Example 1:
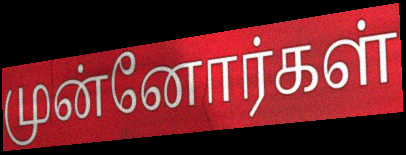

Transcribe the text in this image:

முன்னோர்கள்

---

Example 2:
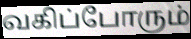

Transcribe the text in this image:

வகிப்போரும்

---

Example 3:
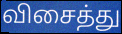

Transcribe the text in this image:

விசைத்து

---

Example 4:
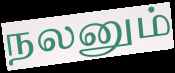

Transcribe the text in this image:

நலனும்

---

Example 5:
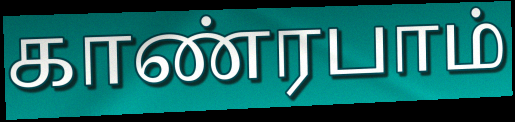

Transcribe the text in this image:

காண்ரபாம்